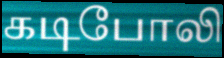
கடிபோலி